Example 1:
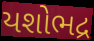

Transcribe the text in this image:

યશોભદ્ર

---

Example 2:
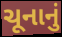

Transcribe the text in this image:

ચૂનાનું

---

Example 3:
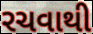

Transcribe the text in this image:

રચવાથી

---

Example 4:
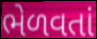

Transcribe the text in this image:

ભેળવતાં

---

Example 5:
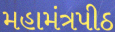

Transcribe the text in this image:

મહામંત્રપીઠ